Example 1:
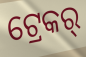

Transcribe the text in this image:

ଟ୍ରେକର୍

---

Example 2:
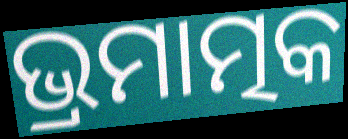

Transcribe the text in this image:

ଭ୍ରମାତ୍ମକ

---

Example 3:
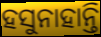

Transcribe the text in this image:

ହସୁନାହାନ୍ତି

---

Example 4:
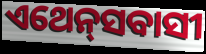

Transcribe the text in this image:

ଏଥେନ୍‌ସବାସୀ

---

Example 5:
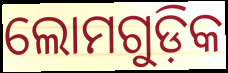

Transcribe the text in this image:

ଲୋମଗୁଡ଼ିକ